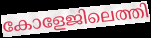
കോളേജിലെത്തി